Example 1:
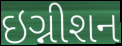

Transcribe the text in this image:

ઇગ્નીશન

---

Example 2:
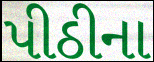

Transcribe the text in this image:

પીઠીના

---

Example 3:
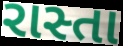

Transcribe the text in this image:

રાસ્તા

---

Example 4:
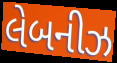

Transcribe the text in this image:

લેબનીઝ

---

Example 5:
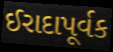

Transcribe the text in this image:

ઈરાદાપૂર્વક